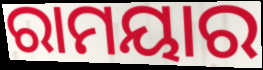
ରାମୟାର